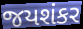
જયશંકર